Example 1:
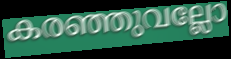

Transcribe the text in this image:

കരഞ്ഞുവല്ലോ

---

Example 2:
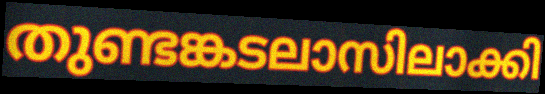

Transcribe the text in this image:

തുണ്ടങ്കടലാസിലാക്കി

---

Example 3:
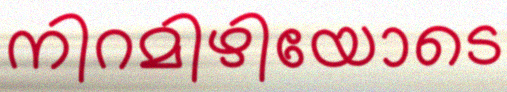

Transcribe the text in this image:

നിറമിഴിയോടെ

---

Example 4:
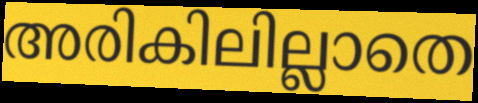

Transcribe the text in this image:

അരികിലില്ലാതെ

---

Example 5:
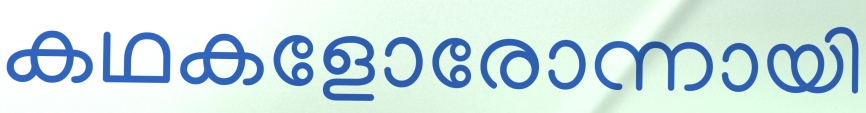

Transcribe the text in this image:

കഥകളോരോന്നായി